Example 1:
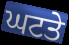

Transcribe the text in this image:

ਘਟਤੇ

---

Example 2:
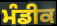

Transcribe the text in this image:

ਮੰਡੀਕ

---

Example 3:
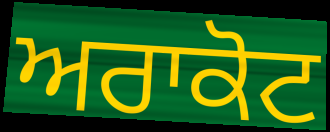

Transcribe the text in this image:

ਅਰਾਕੋਟ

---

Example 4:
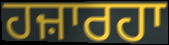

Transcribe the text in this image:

ਹਜ਼ਾਰਹਾ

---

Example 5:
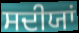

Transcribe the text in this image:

ਸਦੀਯਾਂ